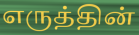
எருத்தின்